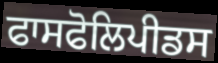
ਫਾਸਫੋਲਿਪੀਡਸ